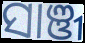
ସାଞ୍ଜ